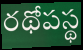
రథోపస్థ